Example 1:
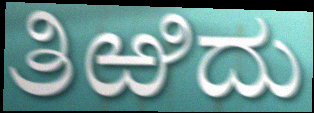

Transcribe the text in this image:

ತಿಱಿದು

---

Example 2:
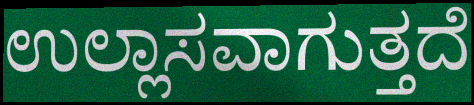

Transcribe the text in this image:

ಉಲ್ಲಾಸವಾಗುತ್ತದೆ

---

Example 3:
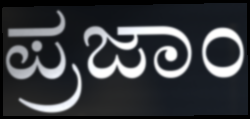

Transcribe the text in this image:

ಪ್ರಜಾಂ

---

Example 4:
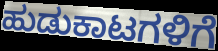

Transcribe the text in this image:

ಹುಡುಕಾಟಗಳಿಗೆ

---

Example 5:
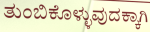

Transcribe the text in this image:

ತುಂಬಿಕೊಳ್ಳುವುದಕ್ಕಾಗಿ